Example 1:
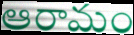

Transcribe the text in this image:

ఆరామం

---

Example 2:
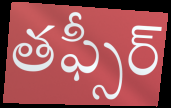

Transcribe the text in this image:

తఫ్సీర్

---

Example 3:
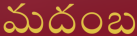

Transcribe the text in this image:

మదంబ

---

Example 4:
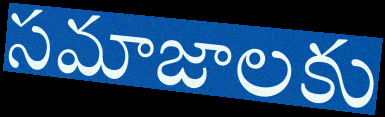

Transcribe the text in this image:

సమాజాలకు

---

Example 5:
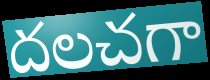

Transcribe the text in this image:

దలచగా